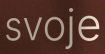
svoje